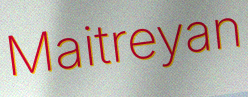
Maitreyan